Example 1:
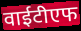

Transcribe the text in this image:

वाईटीएफ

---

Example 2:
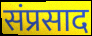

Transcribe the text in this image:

संप्रसाद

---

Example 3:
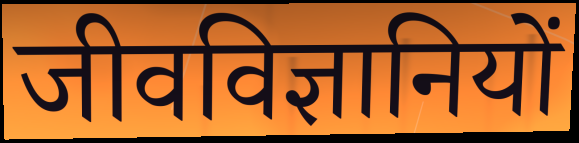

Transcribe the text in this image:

जीवविज्ञानियों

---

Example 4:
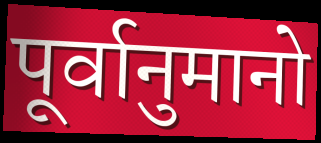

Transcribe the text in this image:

पूर्वानुमानो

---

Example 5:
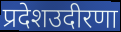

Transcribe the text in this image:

प्रदेशउदीरणा